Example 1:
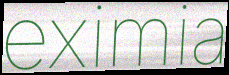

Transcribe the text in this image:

eximia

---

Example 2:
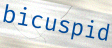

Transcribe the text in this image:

bicuspid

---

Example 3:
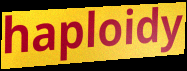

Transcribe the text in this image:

haploidy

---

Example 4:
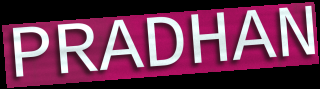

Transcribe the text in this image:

PRADHAN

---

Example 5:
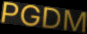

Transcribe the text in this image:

PGDM